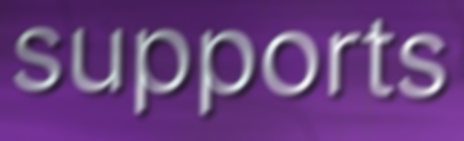
supports